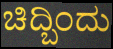
ಚಿದ್ಬಿಂದು